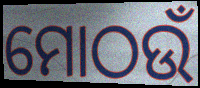
ମୋଠଉଁ